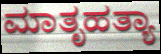
ಮಾತೃಹತ್ಯಾ